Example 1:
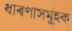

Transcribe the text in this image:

ধাৰণাসমূহক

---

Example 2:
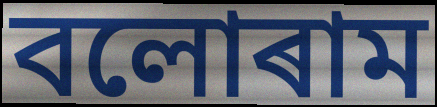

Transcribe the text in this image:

বলোৰাম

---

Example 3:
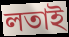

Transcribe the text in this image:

লতাই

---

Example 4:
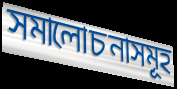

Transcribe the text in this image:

সমালোচনাসমূহ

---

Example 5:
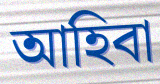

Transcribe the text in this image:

আহিবা